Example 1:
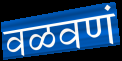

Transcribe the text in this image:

वळवणं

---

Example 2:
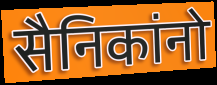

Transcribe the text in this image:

सैनिकांनो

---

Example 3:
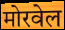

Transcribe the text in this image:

मोरवेल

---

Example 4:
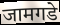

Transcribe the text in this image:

जामगडे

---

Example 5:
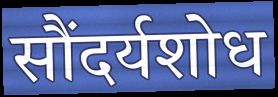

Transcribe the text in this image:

सौंदर्यशोध